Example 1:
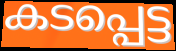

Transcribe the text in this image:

കടപ്പെട്ട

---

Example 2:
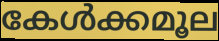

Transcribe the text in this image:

കേൾക്കമൂല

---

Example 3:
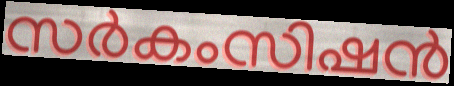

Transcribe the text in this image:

സർകംസിഷൻ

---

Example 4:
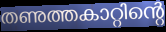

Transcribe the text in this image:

തണുത്തകാറ്റിന്റെ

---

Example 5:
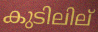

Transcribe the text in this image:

കുടിലില്